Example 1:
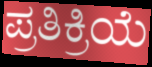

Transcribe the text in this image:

ಪ್ರತಿಕ್ರಿಯೆ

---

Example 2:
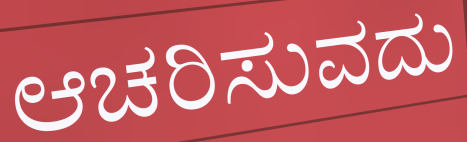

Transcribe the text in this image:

ಆಚರಿಸುವದು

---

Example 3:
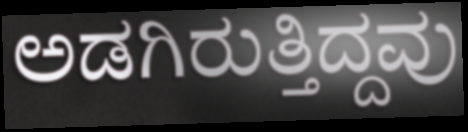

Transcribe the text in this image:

ಅಡಗಿರುತ್ತಿದ್ದವು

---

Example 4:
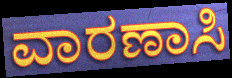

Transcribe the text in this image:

ವಾರಣಾಸಿ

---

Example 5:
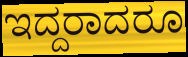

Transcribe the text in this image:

ಇದ್ದರಾದರೂ